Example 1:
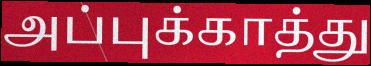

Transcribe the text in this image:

அப்புக்காத்து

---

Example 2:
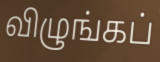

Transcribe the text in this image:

விழுங்கப்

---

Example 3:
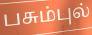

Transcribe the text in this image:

பசும்புல்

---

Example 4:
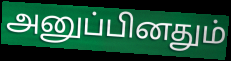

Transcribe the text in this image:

அனுப்பினதும்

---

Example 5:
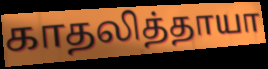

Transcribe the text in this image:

காதலித்தாயா